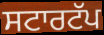
ਸਟਾਰਟੱਪ